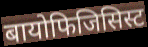
बायोफिजिसिस्ट